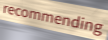
recommending